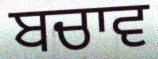
ਬਚਾਵ